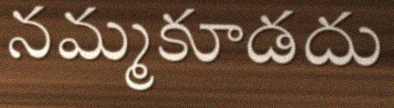
నమ్మకూడదు